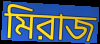
মিরাজ